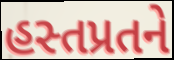
હસ્તપ્રતને